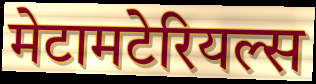
मेटामटेरियल्स